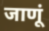
जाणूं